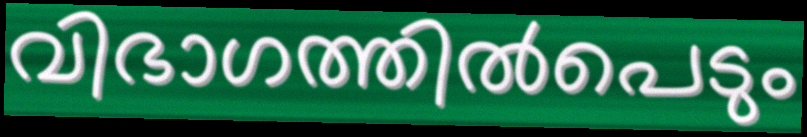
വിഭാഗത്തിൽപെടും